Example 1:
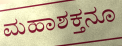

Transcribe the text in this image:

ಮಹಾಶಕ್ತನೂ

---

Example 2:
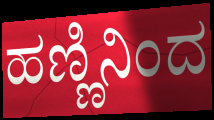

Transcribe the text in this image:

ಹಣ್ಣಿನಿಂದ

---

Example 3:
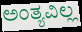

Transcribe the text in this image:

ಅಂತ್ಯವಿಲ್ಲ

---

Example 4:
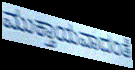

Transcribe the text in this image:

ಮುಕ್ತಾಯವಾದಂತೆ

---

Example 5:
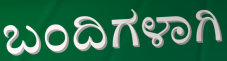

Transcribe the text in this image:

ಬಂದಿಗಳಾಗಿ